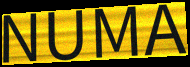
NUMA